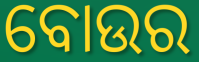
ବୋଉର